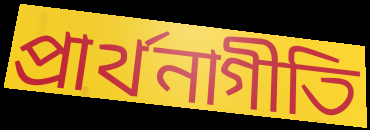
প্রার্থনাগীতি